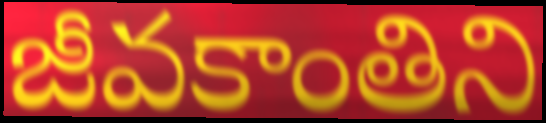
జీవకాంతిని